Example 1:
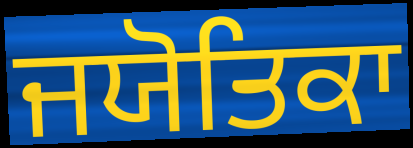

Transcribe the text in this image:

ਜਯੋਤਿਕਾ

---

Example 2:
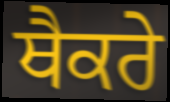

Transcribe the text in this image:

ਥੈਕਰੇ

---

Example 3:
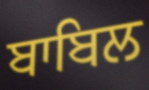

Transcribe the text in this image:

ਬਾਬਿਲ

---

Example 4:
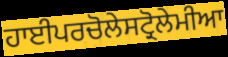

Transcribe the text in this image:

ਹਾਈਪਰਚੋਲੇਸਟ੍ਰੋਲੇਮੀਆ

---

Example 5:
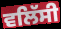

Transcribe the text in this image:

ਵਲਿੱਸੀ